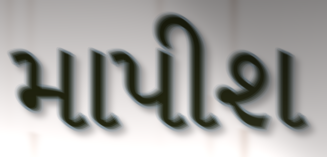
માપીશ